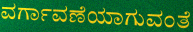
ವರ್ಗಾವಣೆಯಾಗುವಂತೆ